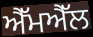
ਐੱਮਐੱਲ